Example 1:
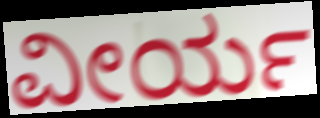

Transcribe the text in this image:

ವೀರ್ಯ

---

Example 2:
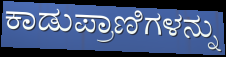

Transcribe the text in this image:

ಕಾಡುಪ್ರಾಣಿಗಳನ್ನು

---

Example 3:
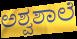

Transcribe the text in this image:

ಅಶ್ವಶಾಲೆ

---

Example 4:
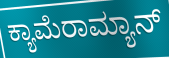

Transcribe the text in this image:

ಕ್ಯಾಮೆರಾಮ್ಯಾನ್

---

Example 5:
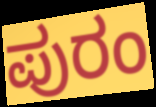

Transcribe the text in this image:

ಪುರಂ